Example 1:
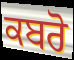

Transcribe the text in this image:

ਕਬਰੋ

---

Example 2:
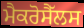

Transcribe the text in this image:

ਮੈਕਰੋਸੈੱਲਸ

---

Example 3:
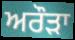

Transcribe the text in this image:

ਅਰੌੜਾ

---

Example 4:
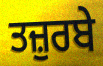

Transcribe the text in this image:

ਤਜ਼ੁਰਬੇ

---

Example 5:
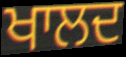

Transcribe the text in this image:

ਖਾਲਦ